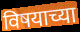
विषयाच्या